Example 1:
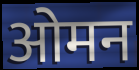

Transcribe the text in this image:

ओमन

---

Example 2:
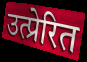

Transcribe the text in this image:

उत्प्रेरित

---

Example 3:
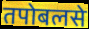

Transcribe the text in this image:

तपोबलसे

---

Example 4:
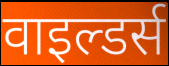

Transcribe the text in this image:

वाइल्डर्स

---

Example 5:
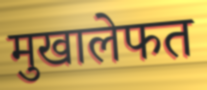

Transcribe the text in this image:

मुखालेफत